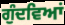
ਗੁੰਦਵਿਆਂ